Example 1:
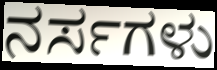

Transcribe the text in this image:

ನರ್ಸಗಳು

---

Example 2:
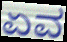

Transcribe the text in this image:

ಏವ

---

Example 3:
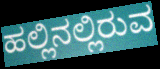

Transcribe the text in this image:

ಹಲ್ಲಿನಲ್ಲಿರುವ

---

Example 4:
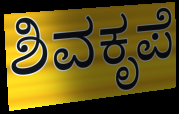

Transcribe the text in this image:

ಶಿವಕೃಪೆ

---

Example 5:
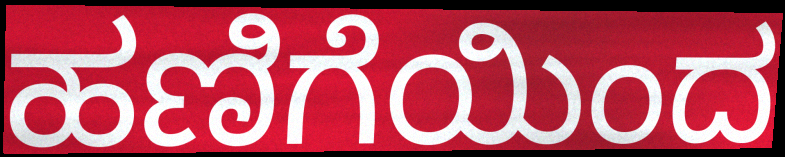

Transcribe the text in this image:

ಹಣಿಗೆಯಿಂದ